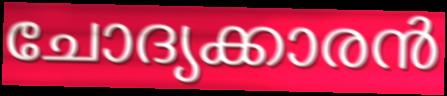
ചോദ്യക്കാരൻ